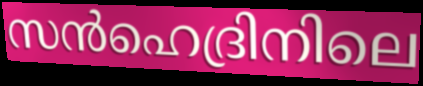
സൻഹെദ്രിനിലെ